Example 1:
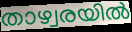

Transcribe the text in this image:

താഴ്വരയിൽ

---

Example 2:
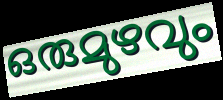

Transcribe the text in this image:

ഒരുമുഴവും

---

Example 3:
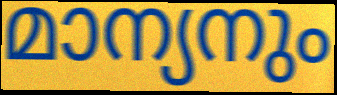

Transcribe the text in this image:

മാന്യനും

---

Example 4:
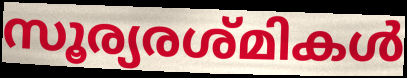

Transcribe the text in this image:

സൂര്യരശ്മികൾ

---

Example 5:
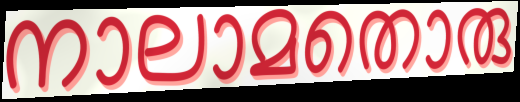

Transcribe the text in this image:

നാലാമതൊരു